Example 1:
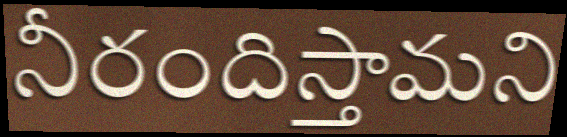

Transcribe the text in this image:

నీరందిస్తామని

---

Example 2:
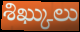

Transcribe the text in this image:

శిఖ్కులు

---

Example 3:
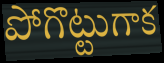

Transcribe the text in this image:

పోగొట్టుగాక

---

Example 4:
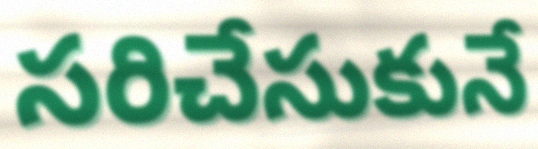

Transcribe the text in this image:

సరిచేసుకునే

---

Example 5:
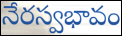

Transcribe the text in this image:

నేరస్వభావం